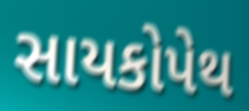
સાયકોપેથ